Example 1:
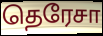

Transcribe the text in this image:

தெரேசா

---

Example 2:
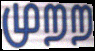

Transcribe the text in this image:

முறற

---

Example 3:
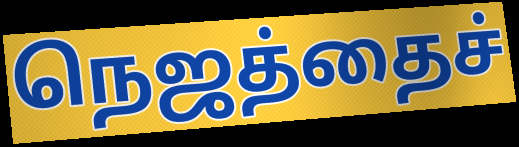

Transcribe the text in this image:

நெஜத்தைச்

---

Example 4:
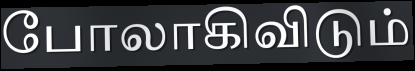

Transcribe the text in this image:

போலாகிவிடும்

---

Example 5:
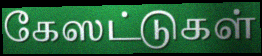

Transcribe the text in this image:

கேஸட்டுகள்